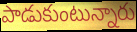
పాడుకుంటున్నారు